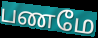
பணமே